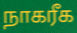
நாகரீக